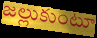
జల్లుకుంటూ